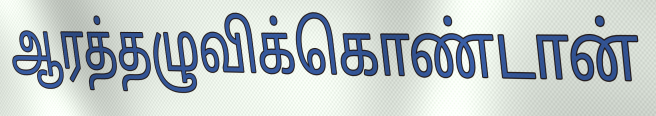
ஆரத்தழுவிக்கொண்டான்